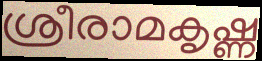
ശ്രീരാമകൃഷ്ണ